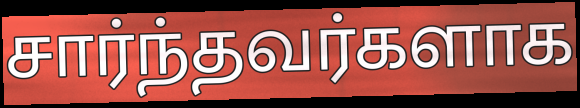
சார்ந்தவர்களாக